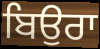
ਬਿਉਰਾ